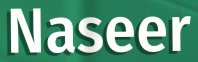
Naseer